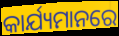
କାର୍ଯ୍ୟମାନରେ